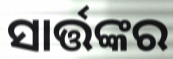
ସାର୍ତ୍ତଙ୍କର